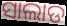
ସାଲାଡ